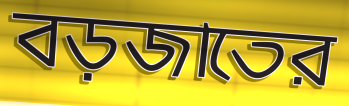
বড়জাতের